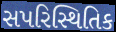
સપરિસ્થિતિક